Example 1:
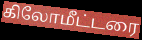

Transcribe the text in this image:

கிலோமீட்டரை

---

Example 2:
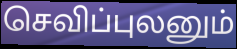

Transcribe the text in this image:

செவிப்புலனும்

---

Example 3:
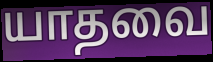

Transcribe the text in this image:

யாதவை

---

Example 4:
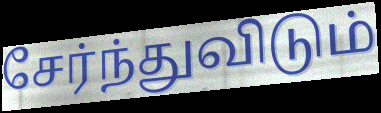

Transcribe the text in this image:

சேர்ந்துவிடும்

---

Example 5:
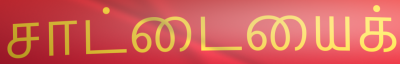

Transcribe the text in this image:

சாட்டையைக்